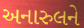
અનારુલને